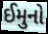
ઈમુનો